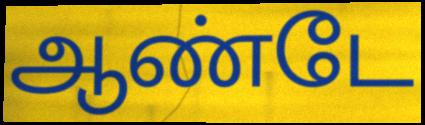
ஆண்டே